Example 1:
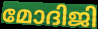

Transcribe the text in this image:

മോദിജി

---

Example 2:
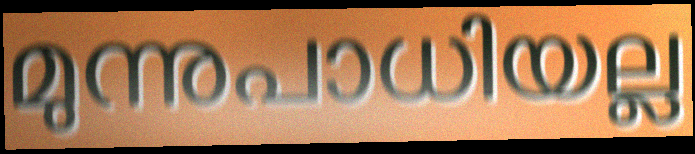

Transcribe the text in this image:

മുന്നുപാധിയല്ല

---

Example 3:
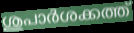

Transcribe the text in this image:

ശുപാർശക്കത്ത്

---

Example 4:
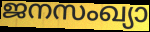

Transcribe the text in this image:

ജനസംഖ്യാ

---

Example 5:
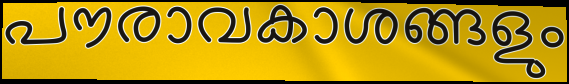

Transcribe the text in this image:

പൗരാവകാശങ്ങളും